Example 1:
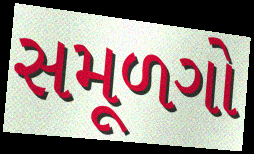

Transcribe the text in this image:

સમૂળગો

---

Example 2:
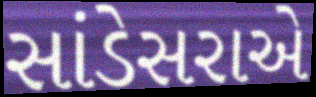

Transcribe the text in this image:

સાંડેસરાએ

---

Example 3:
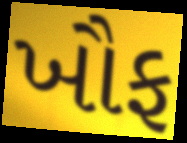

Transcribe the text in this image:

ખૌફ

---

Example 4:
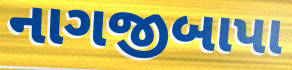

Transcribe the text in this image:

નાગજીબાપા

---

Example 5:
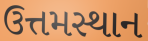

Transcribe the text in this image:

ઉત્તમસ્થાન